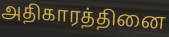
அதிகாரத்தினை